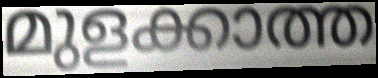
മുളക്കാത്ത